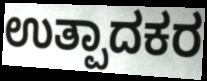
ಉತ್ಪಾದಕರ